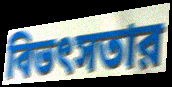
বিভৎসতার